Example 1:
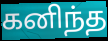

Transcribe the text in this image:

கனிந்த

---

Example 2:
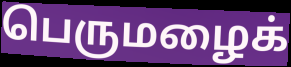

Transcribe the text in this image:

பெருமழைக்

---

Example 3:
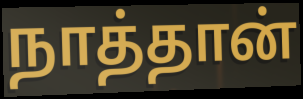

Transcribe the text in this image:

நாத்தான்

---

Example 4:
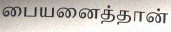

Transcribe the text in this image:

பையனைத்தான்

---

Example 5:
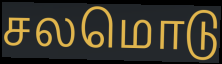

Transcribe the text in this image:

சலமொடு